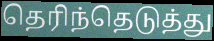
தெரிந்தெடுத்து